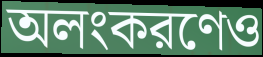
অলংকরণেও